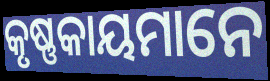
କୃଷ୍ଣକାୟମାନେ